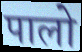
पालो